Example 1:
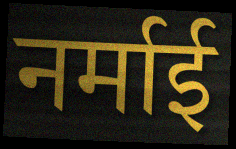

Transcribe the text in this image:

नर्माई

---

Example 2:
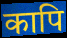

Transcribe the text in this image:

कापि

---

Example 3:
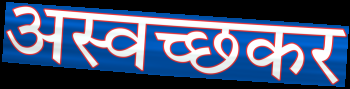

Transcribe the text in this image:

अस्वच्छकर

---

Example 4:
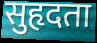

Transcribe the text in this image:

सुहृदता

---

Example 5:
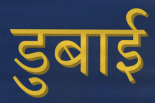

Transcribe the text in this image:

डुबाई